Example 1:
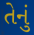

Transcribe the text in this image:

તેનું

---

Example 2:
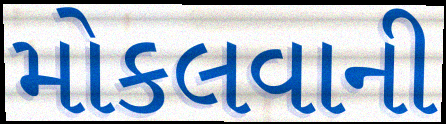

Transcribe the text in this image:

મોકલવાની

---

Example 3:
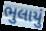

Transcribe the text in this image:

ભુલાયું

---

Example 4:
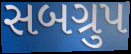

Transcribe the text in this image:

સબગ્રુપ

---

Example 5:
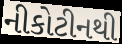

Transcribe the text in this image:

નીકોટીનથી